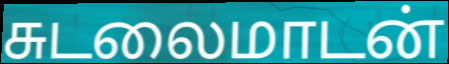
சுடலைமாடன்